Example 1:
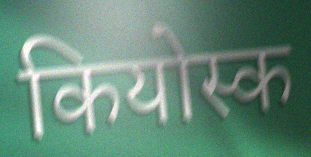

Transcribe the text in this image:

कियोस्क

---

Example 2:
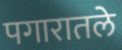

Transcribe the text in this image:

पगारातले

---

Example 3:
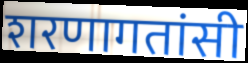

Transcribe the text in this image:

शरणागतांसी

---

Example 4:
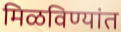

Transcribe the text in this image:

मिळविण्यांत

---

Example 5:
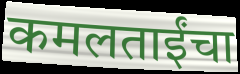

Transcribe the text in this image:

कमलताईंचा